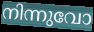
നിന്നുവോ